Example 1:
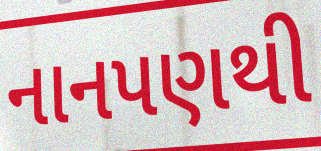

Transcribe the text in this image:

નાનપણથી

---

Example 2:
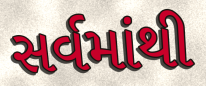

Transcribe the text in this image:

સર્વમાંથી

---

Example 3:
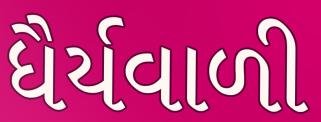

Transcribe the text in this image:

ધૈર્યવાળી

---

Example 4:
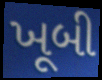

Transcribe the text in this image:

ખૂબી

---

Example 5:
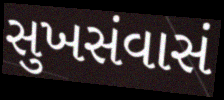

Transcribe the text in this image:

સુખસંવાસં